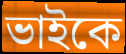
ভাইকে